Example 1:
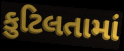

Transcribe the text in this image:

કુટિલતામાં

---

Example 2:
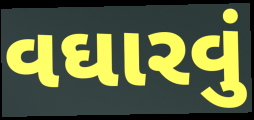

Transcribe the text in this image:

વઘારવું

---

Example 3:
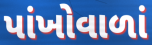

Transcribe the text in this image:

પાંખોવાળાં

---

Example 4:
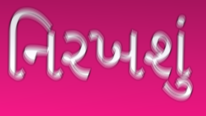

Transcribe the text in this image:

નિરખશું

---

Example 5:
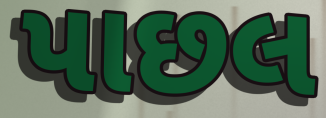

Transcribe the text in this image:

પાછલ